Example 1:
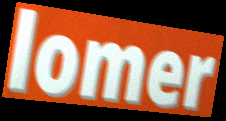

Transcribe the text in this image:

lomer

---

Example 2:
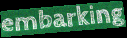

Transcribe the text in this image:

embarking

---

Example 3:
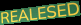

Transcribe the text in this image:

REALESED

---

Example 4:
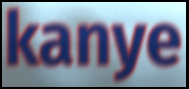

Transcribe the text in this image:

kanye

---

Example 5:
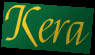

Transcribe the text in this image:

Kera